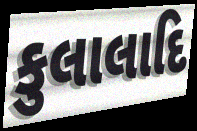
કુલાલાદિ